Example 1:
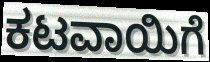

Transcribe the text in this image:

ಕಟವಾಯಿಗೆ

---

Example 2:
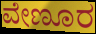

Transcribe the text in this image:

ವೇಣೂರ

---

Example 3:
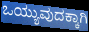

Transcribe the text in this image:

ಒಯ್ಯುವುದಕ್ಕಾಗಿ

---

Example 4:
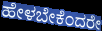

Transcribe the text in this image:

ಹೇಳಬೇಕೆಂದರೇ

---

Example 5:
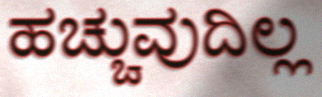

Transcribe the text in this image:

ಹಚ್ಚುವುದಿಲ್ಲ